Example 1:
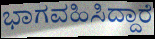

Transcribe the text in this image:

ಭಾಗವಹಿಸಿದ್ದಾರೆ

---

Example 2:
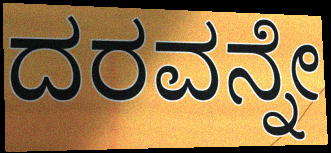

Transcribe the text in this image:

ದರವನ್ನೇ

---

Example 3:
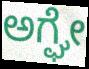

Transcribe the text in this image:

ಅಗ್ಘೇ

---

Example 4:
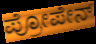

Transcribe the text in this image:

ಪ್ರೋಪೇನ್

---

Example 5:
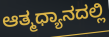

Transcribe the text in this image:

ಆತ್ಮಧ್ಯಾನದಲ್ಲಿ